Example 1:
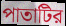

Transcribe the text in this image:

পাতাটির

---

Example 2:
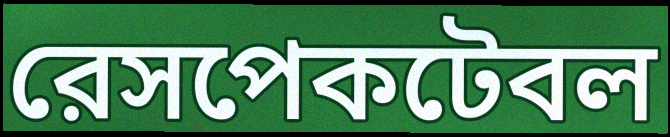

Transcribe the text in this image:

রেসপেকটেবল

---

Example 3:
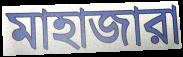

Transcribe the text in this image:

মাহাজারা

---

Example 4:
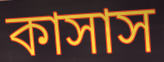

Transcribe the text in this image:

কাসাস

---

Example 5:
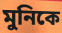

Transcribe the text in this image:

মুনিকে